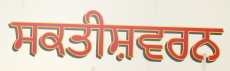
ਸਕਤੀਸ਼ਵਰਨ